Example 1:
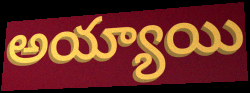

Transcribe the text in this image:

అయ్యాయి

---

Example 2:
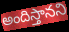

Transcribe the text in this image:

అందిస్తానని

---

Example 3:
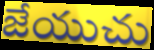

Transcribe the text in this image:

జేయుచు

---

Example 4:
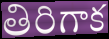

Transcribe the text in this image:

తిరిగాక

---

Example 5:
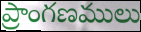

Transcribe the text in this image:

ప్రాంగణములు